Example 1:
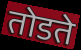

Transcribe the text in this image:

तोडते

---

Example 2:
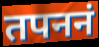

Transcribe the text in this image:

तपननं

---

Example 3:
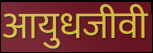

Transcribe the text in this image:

आयुधजीवी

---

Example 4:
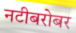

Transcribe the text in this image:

नटीबरोबर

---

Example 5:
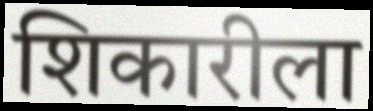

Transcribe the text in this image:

शिकारीला